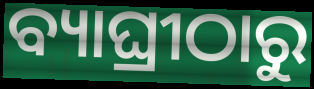
ବ୍ୟାଘ୍ରୀଠାରୁ